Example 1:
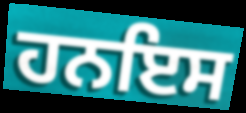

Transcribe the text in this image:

ਹਨਇਸ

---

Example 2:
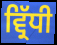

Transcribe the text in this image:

ਵ੍ਰਿੱਧੀ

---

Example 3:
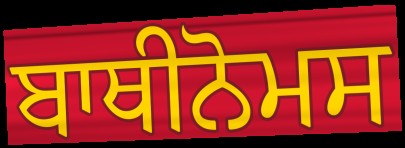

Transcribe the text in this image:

ਬਾਥੀਨੋਮਸ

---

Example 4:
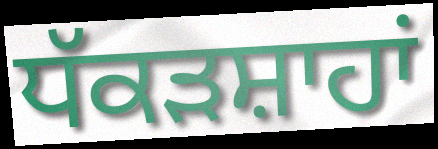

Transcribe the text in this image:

ਧੱਕੜਸ਼ਾਹਾਂ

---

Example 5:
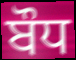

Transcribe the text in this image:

ਬੌਧ